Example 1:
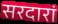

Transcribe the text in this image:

सरदारां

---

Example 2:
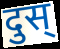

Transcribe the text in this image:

दुस्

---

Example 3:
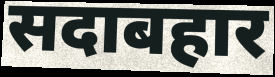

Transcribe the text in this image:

सदाबहार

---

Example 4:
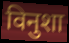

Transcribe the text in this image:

विनुशा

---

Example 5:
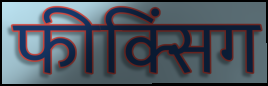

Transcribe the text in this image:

फीक्सिंग